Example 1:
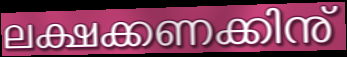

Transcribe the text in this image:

ലക്ഷക്കണക്കിനു്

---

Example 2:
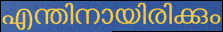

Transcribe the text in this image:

എന്തിനായിരിക്കും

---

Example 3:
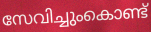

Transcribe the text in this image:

സേവിച്ചുംകൊണ്ട്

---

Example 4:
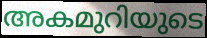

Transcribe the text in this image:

അകമുറിയുടെ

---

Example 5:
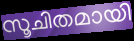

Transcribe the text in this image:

സൂചിതമായി